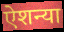
ऐशन्या